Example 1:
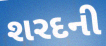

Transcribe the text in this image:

શરદની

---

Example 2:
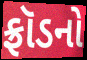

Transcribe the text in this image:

ફ્રૉડનો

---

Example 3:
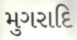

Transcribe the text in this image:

મુગરાદિ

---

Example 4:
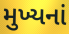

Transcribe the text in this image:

મુખ્યનાં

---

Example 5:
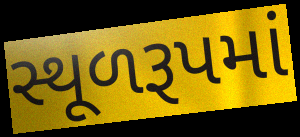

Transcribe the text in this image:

સ્થૂળરૂપમાં